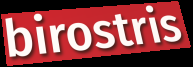
birostris